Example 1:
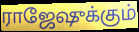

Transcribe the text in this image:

ராஜேஷுக்கும்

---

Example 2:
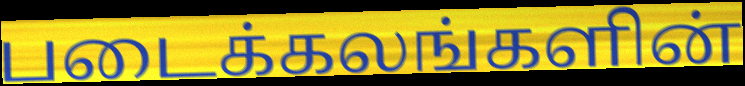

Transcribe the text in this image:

படைக்கலங்களின்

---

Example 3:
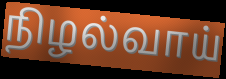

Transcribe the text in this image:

நிழல்வாய்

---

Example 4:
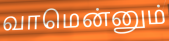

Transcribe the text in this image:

வாமென்னும்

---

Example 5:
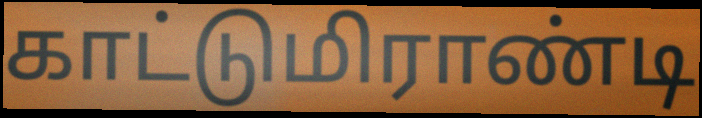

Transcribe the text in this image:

காட்டுமிராண்டி